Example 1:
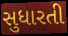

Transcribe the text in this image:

સુધારતી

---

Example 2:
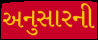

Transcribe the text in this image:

અનુસારની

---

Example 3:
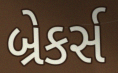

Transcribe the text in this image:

બ્રેકર્સ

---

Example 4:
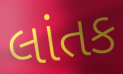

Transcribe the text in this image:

લાંતક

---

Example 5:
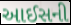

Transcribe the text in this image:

આઈસની